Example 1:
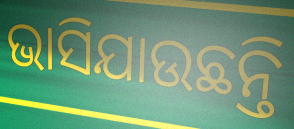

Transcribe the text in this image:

ଭାସିଯାଉଛନ୍ତି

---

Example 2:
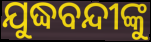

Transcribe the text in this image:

ଯୁଦ୍ଧବନ୍ଦୀଙ୍କୁ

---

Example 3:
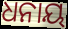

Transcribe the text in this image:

ଧନାୟ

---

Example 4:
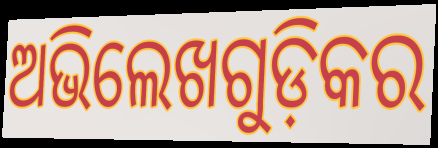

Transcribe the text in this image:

ଅଭିଲେଖଗୁଡ଼ିକର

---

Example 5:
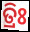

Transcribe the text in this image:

ତ୍ରିଃ